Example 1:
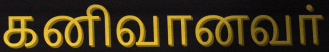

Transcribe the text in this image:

கனிவானவர்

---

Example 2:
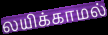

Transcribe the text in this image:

லயிக்காமல்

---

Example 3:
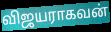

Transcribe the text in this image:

விஜயராகவன்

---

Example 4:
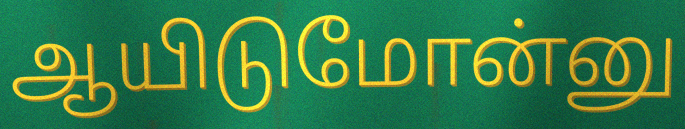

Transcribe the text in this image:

ஆயிடுமோன்னு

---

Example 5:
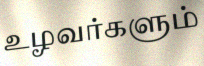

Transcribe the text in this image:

உழவர்களும்